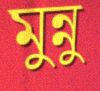
মুন্নু